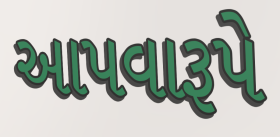
આપવારૂપે